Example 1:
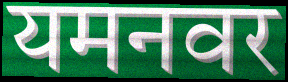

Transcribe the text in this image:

यमनवर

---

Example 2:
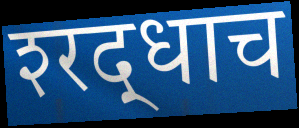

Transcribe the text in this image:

श्रद्धाच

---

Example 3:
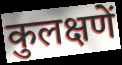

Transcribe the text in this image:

कुलक्षणें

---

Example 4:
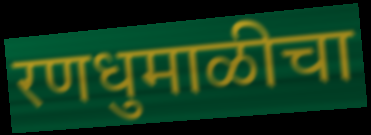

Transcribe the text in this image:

रणधुमाळीचा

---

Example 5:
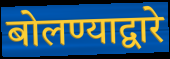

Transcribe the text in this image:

बोलण्याद्वारे